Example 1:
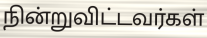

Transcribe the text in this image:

நின்றுவிட்டவர்கள்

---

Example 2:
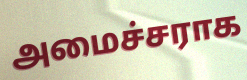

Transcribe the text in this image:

அமைச்சராக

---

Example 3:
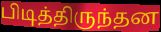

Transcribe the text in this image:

பிடித்திருந்தன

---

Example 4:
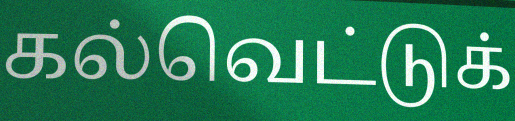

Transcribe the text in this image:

கல்வெட்டுக்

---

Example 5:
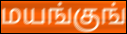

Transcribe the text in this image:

மயங்குங்